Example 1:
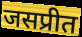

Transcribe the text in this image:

जसप्रीत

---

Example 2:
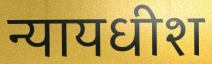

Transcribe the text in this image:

न्यायधीश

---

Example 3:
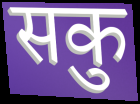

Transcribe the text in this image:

सकु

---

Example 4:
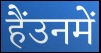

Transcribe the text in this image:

हैंउनमें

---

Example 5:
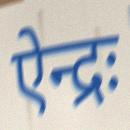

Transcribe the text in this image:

ऐन्द्रः